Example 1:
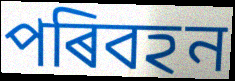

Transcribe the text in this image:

পৰিবহন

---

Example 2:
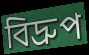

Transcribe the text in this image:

বিদ্ৰুপ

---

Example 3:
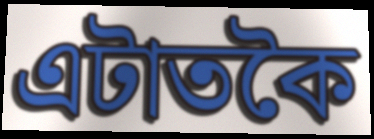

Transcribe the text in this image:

এটাতকৈ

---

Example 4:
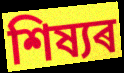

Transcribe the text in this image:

শিষ্যৰ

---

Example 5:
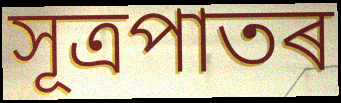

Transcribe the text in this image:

সূত্ৰপাতৰ